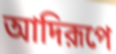
আদিরূপে